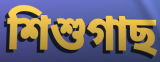
শিশুগাছ